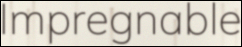
Impregnable